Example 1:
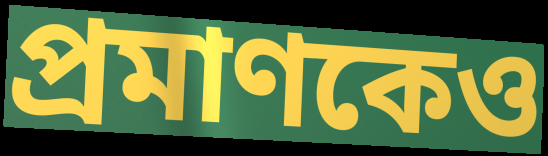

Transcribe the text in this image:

প্রমাণকেও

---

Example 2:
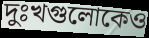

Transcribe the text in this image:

দুঃখগুলোকেও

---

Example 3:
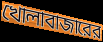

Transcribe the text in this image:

খোলাবাজারের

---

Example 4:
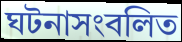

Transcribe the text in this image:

ঘটনাসংবলিত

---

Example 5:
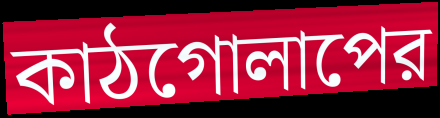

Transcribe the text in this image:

কাঠগোলাপের